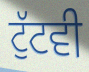
ਟੁੱਟਵੀ